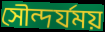
সৌন্দর্যময়